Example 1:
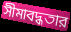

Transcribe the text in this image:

সীমাবদ্ধতার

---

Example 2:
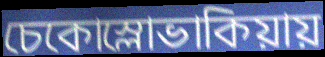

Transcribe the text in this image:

চেকোস্লোভাকিয়ায়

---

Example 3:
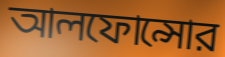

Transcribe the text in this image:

আলফোন্সোর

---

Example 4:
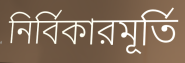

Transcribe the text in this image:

নির্বিকারমূর্তি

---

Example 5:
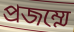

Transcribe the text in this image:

প্রজম্মে